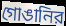
গোঙানির